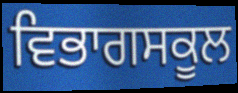
ਵਿਭਾਗਸਕੂਲ